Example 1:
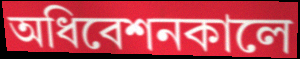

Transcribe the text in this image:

অধিবেশনকালে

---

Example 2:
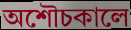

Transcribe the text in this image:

অশৌচকালে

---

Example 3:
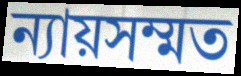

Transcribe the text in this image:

ন্যায়সম্মত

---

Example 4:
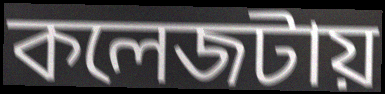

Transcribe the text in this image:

কলেজটায়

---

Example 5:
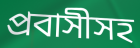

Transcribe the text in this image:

প্রবাসীসহ